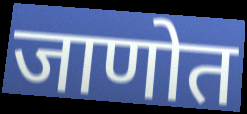
जाणोत